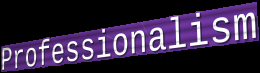
Professionalism